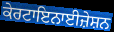
ਕੇਰਟਾਇਨਾਈਜ਼ੇਸ਼ਨ